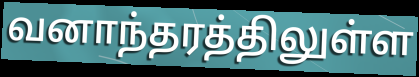
வனாந்தரத்திலுள்ள